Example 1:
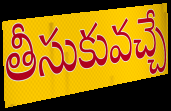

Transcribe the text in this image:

తీసుకువచ్చే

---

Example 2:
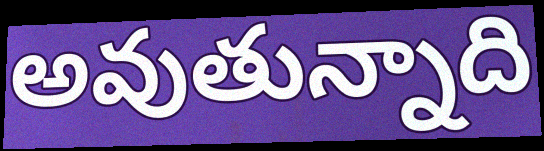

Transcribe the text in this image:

అవుతున్నాది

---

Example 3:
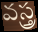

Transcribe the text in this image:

వస్త్ర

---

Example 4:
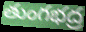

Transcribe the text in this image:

తుంగభద్ర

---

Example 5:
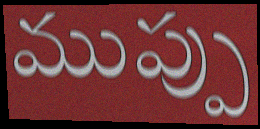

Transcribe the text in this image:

ముప్పు